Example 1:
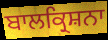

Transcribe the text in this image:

ਬਾਲਕ੍ਰਿਸ਼ਨਾ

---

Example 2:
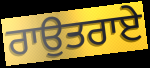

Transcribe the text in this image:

ਰਾਉਤਰਾਏ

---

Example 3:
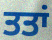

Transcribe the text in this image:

ਤਤਾਂ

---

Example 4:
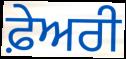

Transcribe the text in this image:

ਫ਼ੇਅਰੀ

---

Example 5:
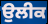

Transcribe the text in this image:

ਉਲੀਕ